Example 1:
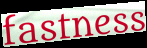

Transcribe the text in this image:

fastness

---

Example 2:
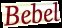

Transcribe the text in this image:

Bebel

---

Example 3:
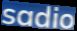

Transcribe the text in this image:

sadio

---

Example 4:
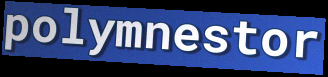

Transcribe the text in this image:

polymnestor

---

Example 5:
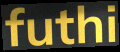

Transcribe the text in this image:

futhi